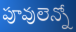
పూవులెన్నో